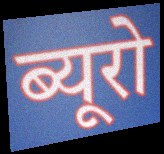
ब्‍यूरो